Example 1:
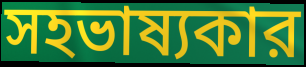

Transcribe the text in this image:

সহভাষ্যকার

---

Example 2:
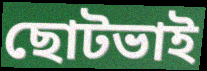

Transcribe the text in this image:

ছোটভাই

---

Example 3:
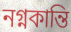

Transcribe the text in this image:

নগ্নকান্তি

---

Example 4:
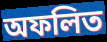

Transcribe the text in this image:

অফলিত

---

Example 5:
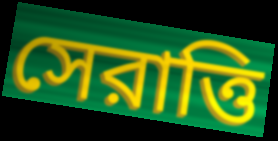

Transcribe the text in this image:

সেরাত্তি